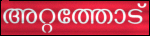
അറ്റത്തോട്